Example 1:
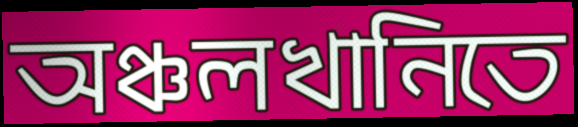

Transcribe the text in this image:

অঞ্চলখানিতে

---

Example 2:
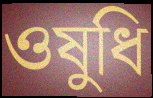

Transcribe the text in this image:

ওষুধি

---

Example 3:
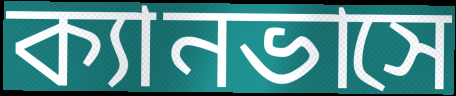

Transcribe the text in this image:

ক্যানভাসে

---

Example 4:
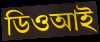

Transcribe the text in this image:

ডিওআই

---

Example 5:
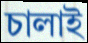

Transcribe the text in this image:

চালাই